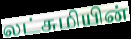
லட்சுமியின்